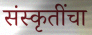
संस्कृतींचा